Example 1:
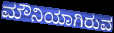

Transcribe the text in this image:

ಮೌನಿಯಾಗಿರುವ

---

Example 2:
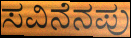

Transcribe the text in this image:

ಸವಿನೆನಪು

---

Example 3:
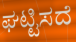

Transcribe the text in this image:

ಘಟ್ಟಿಸದೆ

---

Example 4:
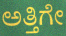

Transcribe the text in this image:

ಅತ್ತಿಗೇ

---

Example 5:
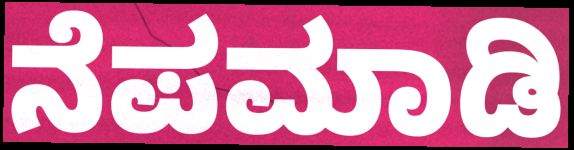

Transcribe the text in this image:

ನೆಪಮಾಡಿ